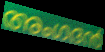
അംഗദൻ